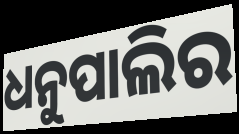
ଧନୁପାଲିର